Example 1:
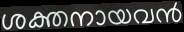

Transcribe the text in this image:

ശക്തനായവൻ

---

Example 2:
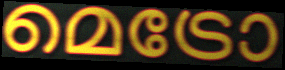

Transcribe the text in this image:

മെട്രോ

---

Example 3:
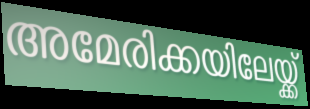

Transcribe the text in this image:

അമേരിക്കയിലേയ്ക്ക്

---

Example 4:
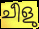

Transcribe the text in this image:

ചീളു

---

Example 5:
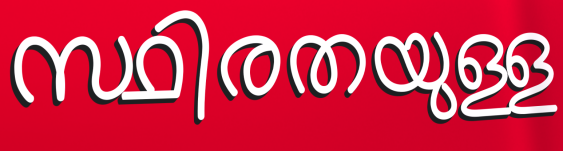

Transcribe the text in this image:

സ്ഥിരതയുള്ള